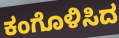
ಕಂಗೊಳಿಸಿದ